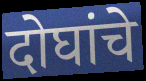
दोघांचे